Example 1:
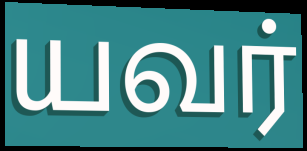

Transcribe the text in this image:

யவர்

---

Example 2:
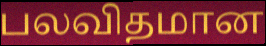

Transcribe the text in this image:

பலவிதமான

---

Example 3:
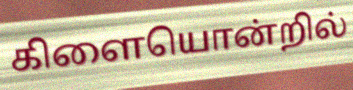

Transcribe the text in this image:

கிளையொன்றில்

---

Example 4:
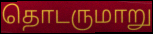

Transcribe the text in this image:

தொடருமாறு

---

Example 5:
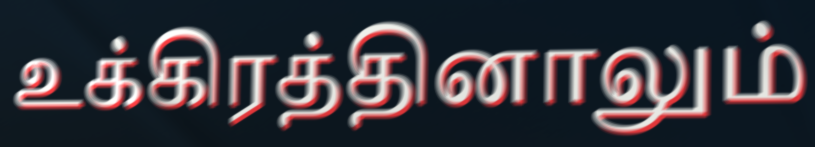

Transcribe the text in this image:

உக்கிரத்தினாலும்